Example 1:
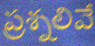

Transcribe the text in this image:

ప్రశ్నలివే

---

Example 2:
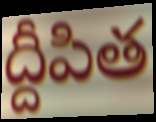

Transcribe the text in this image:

ద్దీపిత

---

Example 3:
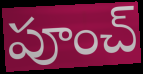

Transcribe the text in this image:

పూంచ్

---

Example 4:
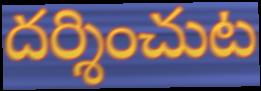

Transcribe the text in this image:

దర్శించుట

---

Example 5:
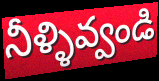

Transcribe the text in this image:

నీళ్ళివ్వండి